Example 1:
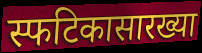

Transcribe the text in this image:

स्फटिकासारख्या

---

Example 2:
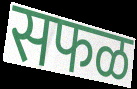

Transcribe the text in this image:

सफळ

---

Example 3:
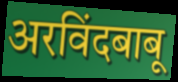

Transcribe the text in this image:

अरविंदबाबू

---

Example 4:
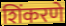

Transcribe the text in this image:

शिंकरणे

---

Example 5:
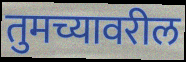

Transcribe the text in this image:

तुमच्यावरील